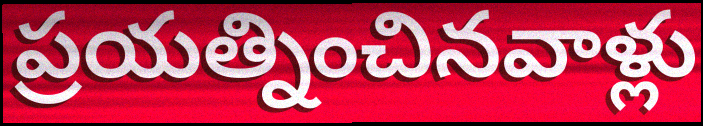
ప్రయత్నించినవాళ్లు